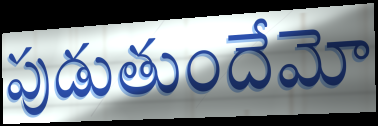
పుడుతుందేమో